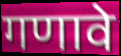
गणावे